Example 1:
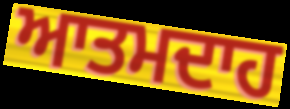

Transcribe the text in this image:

ਆਤਮਦਾਹ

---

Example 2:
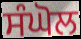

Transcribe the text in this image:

ਸੰਘੋਲ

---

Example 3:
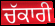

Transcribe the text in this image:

ਚੱਕਾਰੀ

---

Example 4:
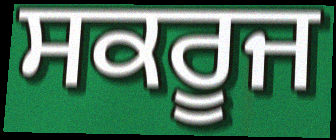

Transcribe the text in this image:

ਸਕਰੂਜ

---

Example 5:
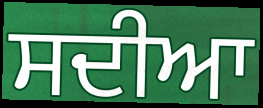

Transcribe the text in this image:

ਸਦੀਆ